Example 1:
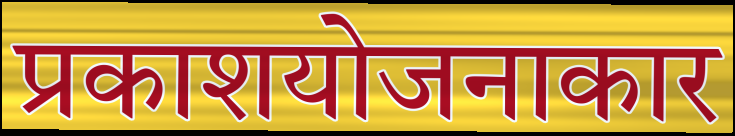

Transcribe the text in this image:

प्रकाशयोजनाकार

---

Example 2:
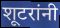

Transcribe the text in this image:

शूटरांनी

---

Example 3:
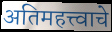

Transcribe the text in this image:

अतिमहत्त्वाचे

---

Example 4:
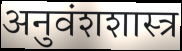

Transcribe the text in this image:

अनुवंशशास्त्र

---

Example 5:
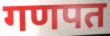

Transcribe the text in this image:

गणपत